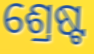
ଶ୍ରେଷ୍ଟ